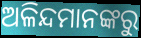
ଅଳିନ୍ଦମାନଙ୍କରୁ